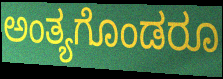
ಅಂತ್ಯಗೊಂಡರೂ